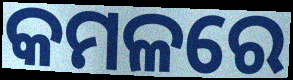
କମଳରେ